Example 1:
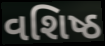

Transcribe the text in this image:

વશિષ્ઠ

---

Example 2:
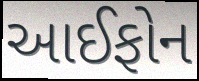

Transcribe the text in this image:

આઈફોન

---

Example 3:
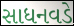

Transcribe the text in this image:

સાધનવડે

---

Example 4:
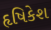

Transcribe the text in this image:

હૃષિકેશ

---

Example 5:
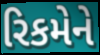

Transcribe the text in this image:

રિકમેને